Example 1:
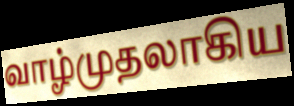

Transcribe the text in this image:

வாழ்முதலாகிய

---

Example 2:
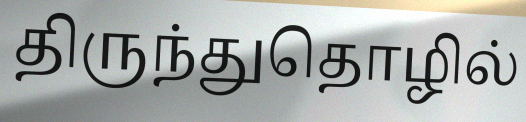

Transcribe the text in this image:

திருந்துதொழில்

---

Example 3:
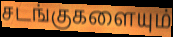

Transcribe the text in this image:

சடங்குகளையும்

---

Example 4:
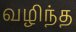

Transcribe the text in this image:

வழிந்த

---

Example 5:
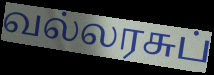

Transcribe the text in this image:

வல்லரசுப்